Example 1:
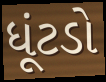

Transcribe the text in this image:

ધૂંટડો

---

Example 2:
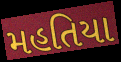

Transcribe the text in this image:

મહતિયા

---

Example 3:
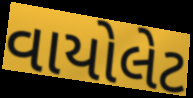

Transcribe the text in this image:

વાયોલેટ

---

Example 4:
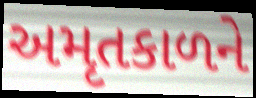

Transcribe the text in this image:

અમૃતકાળને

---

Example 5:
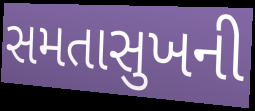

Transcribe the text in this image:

સમતાસુખની